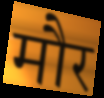
मौर